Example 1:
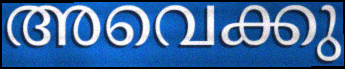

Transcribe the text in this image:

അവെക്കു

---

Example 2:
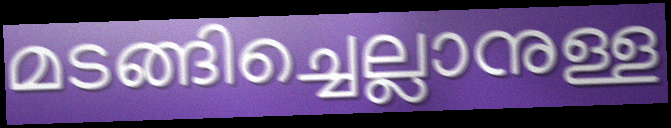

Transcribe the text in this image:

മടങ്ങിച്ചെല്ലാനുള്ള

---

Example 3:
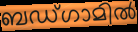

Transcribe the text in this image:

ബഡ്ഗാമിൽ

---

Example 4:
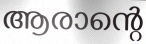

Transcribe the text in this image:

ആരാന്റെ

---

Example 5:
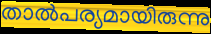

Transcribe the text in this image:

താൽപര്യമായിരുന്നു